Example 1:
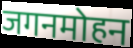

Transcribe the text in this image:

जगनमोहन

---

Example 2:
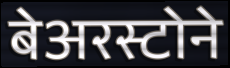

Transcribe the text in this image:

बेअरस्टोने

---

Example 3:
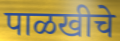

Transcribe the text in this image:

पाळखीचे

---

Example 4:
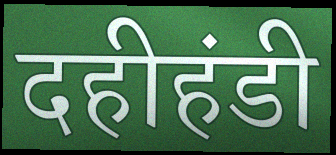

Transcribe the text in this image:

दहीहंडी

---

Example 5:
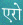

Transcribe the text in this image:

एरो